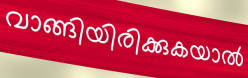
വാങ്ങിയിരിക്കുകയാൽ